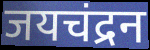
जयचंद्रन